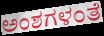
ಅಂಶಗಳಂತೆ